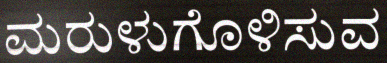
ಮರುಳುಗೊಳಿಸುವ